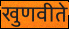
खुणवीते